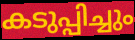
കടുപ്പിച്ചും